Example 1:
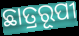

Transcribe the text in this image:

ଛାତ୍ରରୂପୀ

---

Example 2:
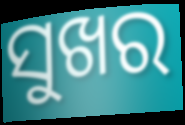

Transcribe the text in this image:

ସୁଖର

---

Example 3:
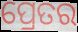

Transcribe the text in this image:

ପ୍ରେତର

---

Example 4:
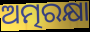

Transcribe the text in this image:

ଅତ୍ମରକ୍ଷା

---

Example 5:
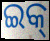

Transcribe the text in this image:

ଇକ୍